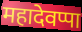
महादेवप्पा